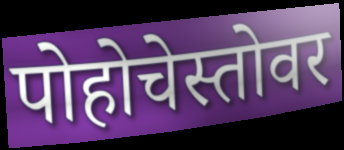
पोहोचेस्तोवर